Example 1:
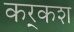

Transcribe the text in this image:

कर्कश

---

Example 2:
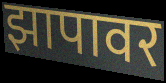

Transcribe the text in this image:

झापावर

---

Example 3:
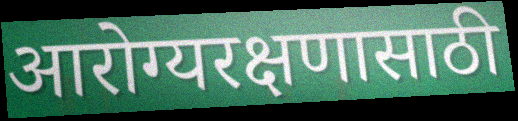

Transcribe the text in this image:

आरोग्यरक्षणासाठी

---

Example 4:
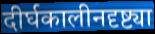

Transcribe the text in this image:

दीर्घकालीनदृष्ट्या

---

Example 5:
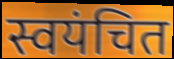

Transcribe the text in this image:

स्वयंचित